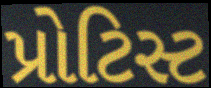
પ્રોટિસ્ટ